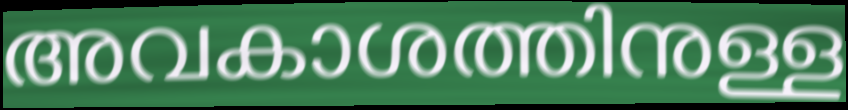
അവകാശത്തിനുള്ള